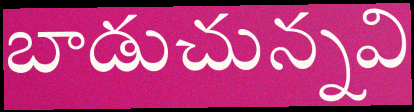
బాడుచున్నవి